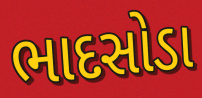
ભાદસોડા